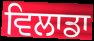
ਵਿਲਾਡਾ